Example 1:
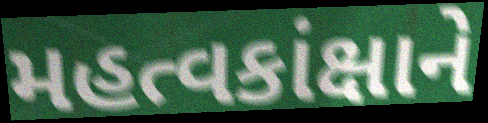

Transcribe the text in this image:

મહત્વકાંક્ષાને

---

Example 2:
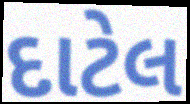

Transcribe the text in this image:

દાટેલ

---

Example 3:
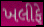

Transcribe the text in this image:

ખલીફે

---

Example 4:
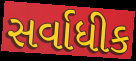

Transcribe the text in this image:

સર્વાધીક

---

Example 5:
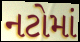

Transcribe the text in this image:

નટોમાં